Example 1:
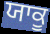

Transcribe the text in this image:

ਯਾਕੂ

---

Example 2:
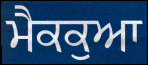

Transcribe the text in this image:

ਮੈਕਕੁਆ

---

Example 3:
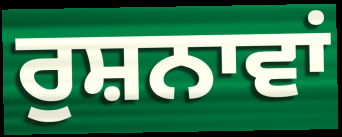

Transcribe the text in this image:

ਰੁਸ਼ਨਾਵਾਂ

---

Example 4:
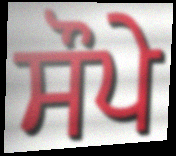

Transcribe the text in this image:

ਸੌਪੇ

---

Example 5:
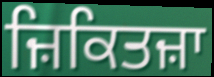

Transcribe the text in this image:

ਜ਼ਿਕਿਤਜ਼ਾ